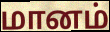
மானம்